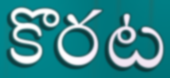
కొరట